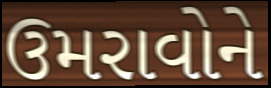
ઉમરાવોને